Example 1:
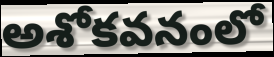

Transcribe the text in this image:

అశోకవనంలో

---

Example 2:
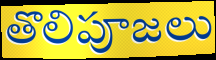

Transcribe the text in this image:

తొలిపూజలు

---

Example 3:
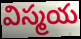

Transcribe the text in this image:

విస్మయ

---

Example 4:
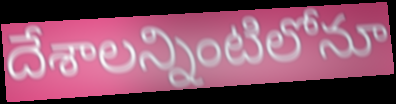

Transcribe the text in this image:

దేశాలన్నింటిలోనూ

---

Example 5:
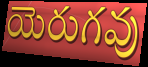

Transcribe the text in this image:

యెరుగవు